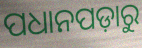
ପଧାନପଡ଼ାରୁ